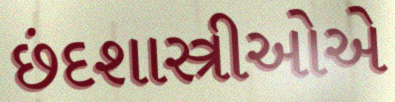
છંદશાસ્ત્રીઓએ